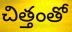
చిత్తంతో